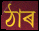
ঠাৰ